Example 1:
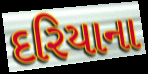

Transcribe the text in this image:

દરિયાના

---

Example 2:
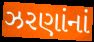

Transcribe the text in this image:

ઝરણાંનાં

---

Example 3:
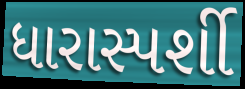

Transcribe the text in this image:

ધારાસ્પર્શી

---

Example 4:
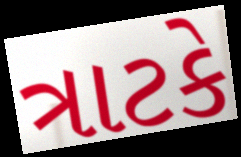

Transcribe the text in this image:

ત્રાટકે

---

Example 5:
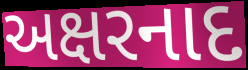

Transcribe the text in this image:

અક્ષરનાદ